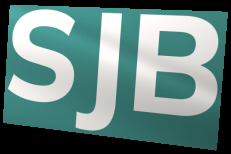
SJB